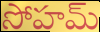
సోహమ్